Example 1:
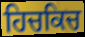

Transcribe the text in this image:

ਹਿਚਕਿਚ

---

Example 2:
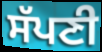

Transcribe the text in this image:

ਸੱਪਣੀ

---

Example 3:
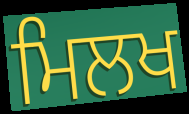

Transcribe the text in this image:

ਮਿਲਖ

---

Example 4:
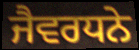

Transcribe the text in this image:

ਜੈਵਰਧਨੇ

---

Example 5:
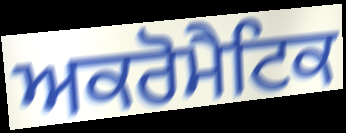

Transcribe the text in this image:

ਅਕਰੋਮੈਟਿਕ